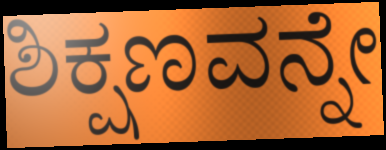
ಶಿಕ್ಷಣವನ್ನೇ